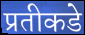
प्रतीकडे